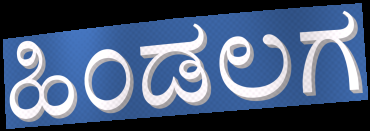
ಹಿಂಡಲಗ